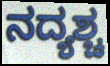
ನದ್ಯಶ್ಚ